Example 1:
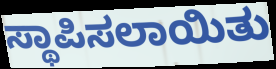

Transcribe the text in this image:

ಸ್ಥಾಪಿಸಲಾಯಿತು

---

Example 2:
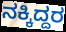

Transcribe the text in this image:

ನಕ್ಕಿದ್ದರ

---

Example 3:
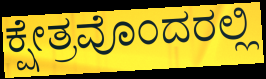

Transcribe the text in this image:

ಕ್ಷೇತ್ರವೊಂದರಲ್ಲಿ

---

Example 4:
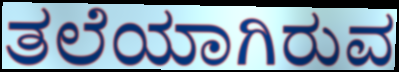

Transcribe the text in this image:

ತಲೆಯಾಗಿರುವ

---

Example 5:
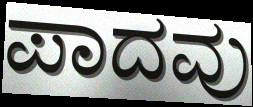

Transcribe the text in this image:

ಪಾದವು